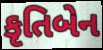
કૃતિબેન